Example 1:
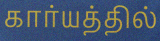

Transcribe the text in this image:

கார்யத்தில்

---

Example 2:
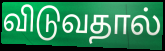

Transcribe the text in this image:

விடுவதால்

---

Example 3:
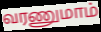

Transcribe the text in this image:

வரணுமாம்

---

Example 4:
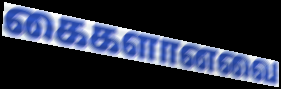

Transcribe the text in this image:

கைகளானவை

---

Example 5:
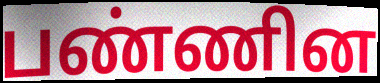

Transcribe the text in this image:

பண்ணின